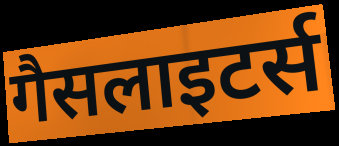
गैसलाइटर्स